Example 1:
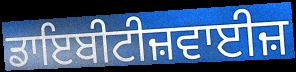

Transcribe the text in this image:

ਡਾਇਬੀਟੀਜ਼ਵਾਈਜ਼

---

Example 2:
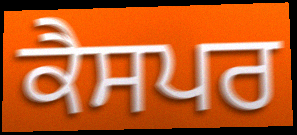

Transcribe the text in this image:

ਕੈਸਪਰ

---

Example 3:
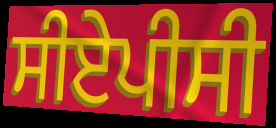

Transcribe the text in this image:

ਸੀਏਪੀਸੀ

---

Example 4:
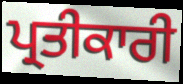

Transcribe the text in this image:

ਪ੍ਰਤੀਕਾਰੀ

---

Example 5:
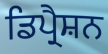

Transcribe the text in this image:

ਡਿਪ੍ਰੈਸ਼ਨ